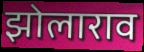
झोलाराव